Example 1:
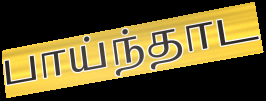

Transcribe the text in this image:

பாய்ந்தாட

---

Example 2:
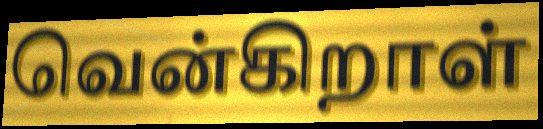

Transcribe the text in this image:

வென்கிறாள்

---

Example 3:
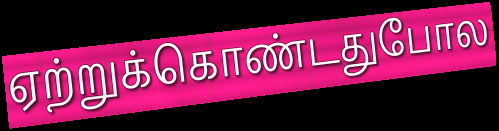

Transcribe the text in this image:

ஏற்றுக்கொண்டதுபோல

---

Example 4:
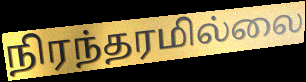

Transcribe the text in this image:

நிரந்தரமில்லை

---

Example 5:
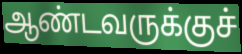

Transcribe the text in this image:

ஆண்டவருக்குச்